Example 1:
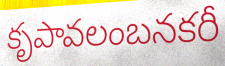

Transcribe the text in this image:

కృపావలంబనకరీ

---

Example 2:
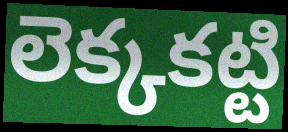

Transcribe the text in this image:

లెక్కకట్టి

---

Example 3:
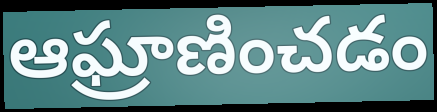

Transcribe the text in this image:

ఆఘ్రాణించడం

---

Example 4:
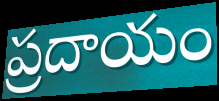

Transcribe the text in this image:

ప్రదాయం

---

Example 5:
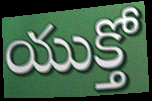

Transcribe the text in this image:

యుక్తో